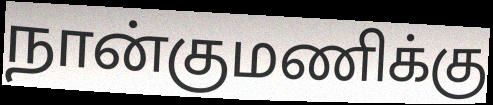
நான்குமணிக்கு